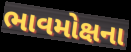
ભાવમોક્ષના